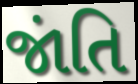
જાંતિ